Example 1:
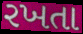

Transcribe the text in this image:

રખતા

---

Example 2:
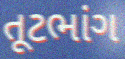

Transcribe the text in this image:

તૂટભાંગ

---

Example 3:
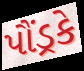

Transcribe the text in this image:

પૌંડ્રકે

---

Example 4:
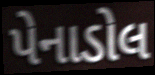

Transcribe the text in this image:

પેનાડોલ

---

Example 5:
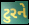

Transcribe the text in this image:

ટુરને